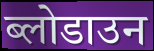
ब्लोडाउन